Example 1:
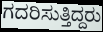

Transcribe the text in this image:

ಗದರಿಸುತ್ತಿದ್ದರು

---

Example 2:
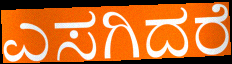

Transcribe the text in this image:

ಎಸಗಿದರೆ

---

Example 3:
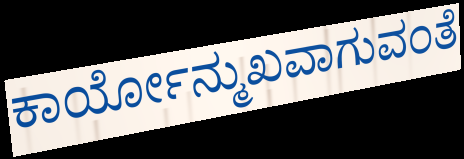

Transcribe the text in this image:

ಕಾರ್ಯೋನ್ಮುಖವಾಗುವಂತೆ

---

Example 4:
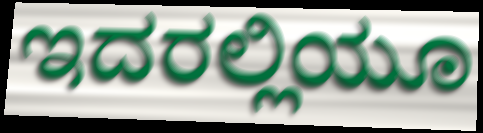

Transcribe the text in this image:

ಇದರಲ್ಲಿಯೂ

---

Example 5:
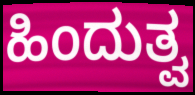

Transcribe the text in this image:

ಹಿಂದುತ್ವ